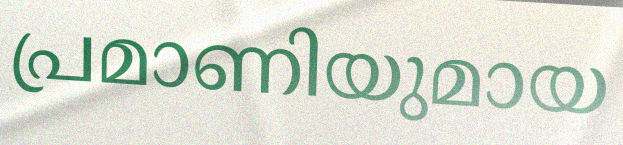
പ്രമാണിയുമായ